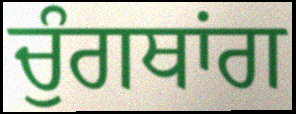
ਚੁੰਗਥਾਂਗ